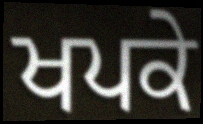
ਖਪਕੇ